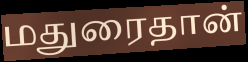
மதுரைதான்